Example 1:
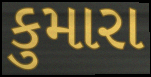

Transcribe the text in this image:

કુમારા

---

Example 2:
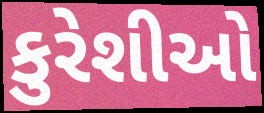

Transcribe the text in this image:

કુરેશીઓ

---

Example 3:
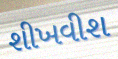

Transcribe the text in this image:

શીખવીશ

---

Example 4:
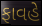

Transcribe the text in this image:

ફાવહે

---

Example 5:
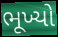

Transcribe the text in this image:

ભૂખ્યો